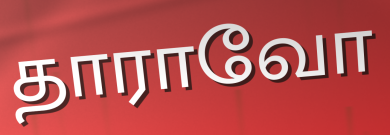
தாராவோ